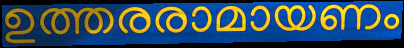
ഉത്തരരാമായണം